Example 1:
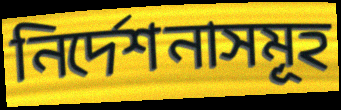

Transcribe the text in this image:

নির্দেশনাসমূহ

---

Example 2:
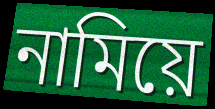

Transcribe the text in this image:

নামিয়ে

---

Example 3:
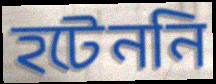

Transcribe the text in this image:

হটেননি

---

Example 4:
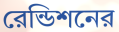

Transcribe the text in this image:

রেন্ডিশনের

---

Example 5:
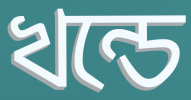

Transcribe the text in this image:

খন্ডে